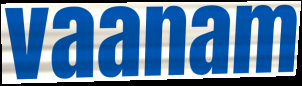
vaanam